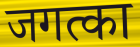
जगत्का